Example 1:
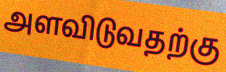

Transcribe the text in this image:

அளவிடுவதற்கு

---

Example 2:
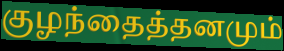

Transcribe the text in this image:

குழந்தைத்தனமும்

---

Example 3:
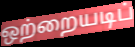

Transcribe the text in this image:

ஒற்றையடிப்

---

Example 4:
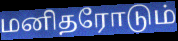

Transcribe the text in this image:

மனிதரோடும்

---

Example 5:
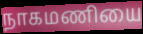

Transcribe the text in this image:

நாகமணியை